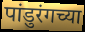
पांडुरंगच्या